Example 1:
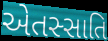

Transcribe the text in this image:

એતસ્સાતિ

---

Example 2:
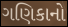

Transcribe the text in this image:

ગણિકાનો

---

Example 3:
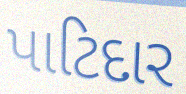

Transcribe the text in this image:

પાટિદાર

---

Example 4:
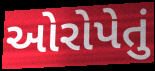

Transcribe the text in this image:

ઓરોપેતું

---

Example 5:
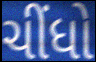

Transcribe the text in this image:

ચીંધો